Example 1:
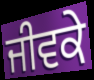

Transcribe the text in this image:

ਜੀਵਕੇ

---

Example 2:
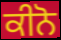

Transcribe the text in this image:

ਕੀਨੋ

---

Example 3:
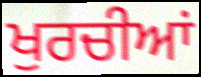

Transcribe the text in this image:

ਖੁਰਚੀਆਂ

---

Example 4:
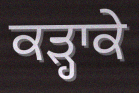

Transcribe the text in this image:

ਕੜ੍ਹਾਕੇ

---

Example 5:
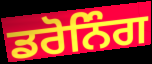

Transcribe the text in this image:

ਡਰੋਨਿੰਗ